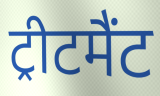
ट्रीटमैंट